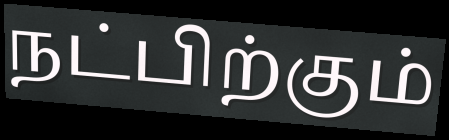
நட்பிற்கும்